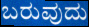
ಬರುವುದು